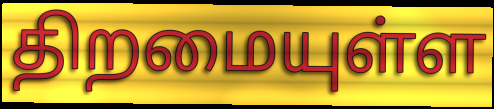
திறமையுள்ள